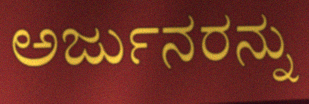
ಅರ್ಜುನರನ್ನು